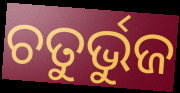
ଚତୁର୍ଭୁଜ